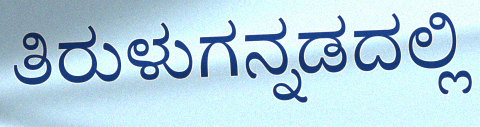
ತಿರುಳುಗನ್ನಡದಲ್ಲಿ